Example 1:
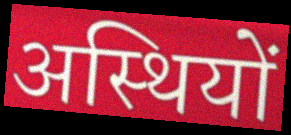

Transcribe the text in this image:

अस्थियों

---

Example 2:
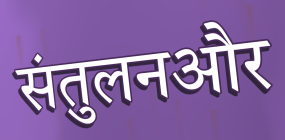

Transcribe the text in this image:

संतुलनऔर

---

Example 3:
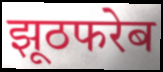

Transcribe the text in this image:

झूठफरेब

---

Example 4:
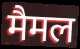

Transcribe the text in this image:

मैमल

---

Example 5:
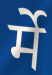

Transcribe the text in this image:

र्मे